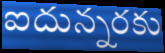
ఐదున్నరకు